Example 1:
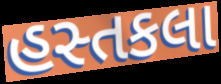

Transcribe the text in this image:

હસ્તકલા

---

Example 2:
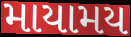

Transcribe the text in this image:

માયામય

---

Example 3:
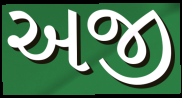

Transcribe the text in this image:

અજી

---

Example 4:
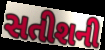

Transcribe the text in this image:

સતીશની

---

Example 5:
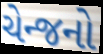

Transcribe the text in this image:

ચેન્જનો